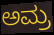
ಅಮ್ರ